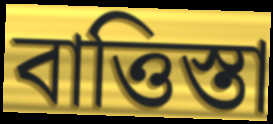
বাত্তিস্তা